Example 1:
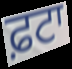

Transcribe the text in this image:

ਫ਼ਟਾ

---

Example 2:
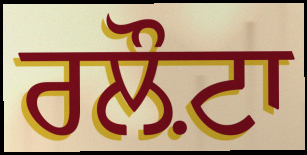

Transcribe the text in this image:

ਰਲ਼ੌਟਾ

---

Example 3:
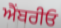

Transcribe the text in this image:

ਐੰਬਰੀਓ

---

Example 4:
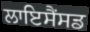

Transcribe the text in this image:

ਲਾਇਸੈਂਸਡ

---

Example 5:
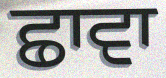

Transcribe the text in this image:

ਛਾਵਾ